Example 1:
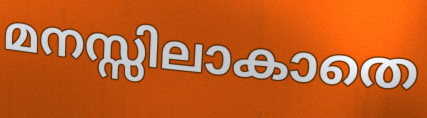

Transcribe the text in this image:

മനസ്സിലാകാതെ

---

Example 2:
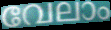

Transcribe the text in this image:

വേലാം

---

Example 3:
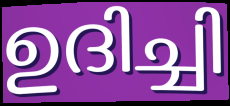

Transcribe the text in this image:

ഉദിച്ചി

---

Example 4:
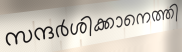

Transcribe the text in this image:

സന്ദർശിക്കാനെത്തി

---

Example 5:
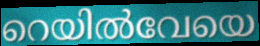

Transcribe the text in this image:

റെയിൽവേയെ